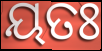
ୟତଃ